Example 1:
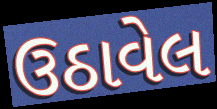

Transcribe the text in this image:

ઉઠાવેલ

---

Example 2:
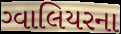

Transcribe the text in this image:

ગ્વાલિયરના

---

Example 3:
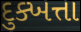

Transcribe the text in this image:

દુક્ખત્તા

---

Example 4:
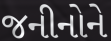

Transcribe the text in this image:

જનીનોને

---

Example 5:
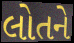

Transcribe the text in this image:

લોતને